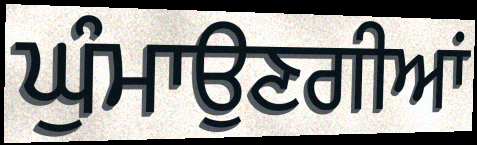
ਘੁੰਮਾਉਣਗੀਆਂ